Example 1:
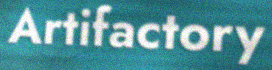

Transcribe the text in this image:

Artifactory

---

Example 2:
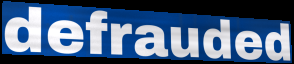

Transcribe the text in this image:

defrauded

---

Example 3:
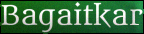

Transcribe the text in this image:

Bagaitkar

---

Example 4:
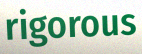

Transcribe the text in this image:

rigorous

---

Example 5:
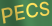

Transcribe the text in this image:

PECS